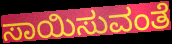
ಸಾಯಿಸುವಂತೆ